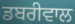
ਡਬਰੀਵਾਲ